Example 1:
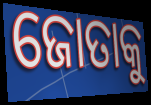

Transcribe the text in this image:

ଜୋତାକୁ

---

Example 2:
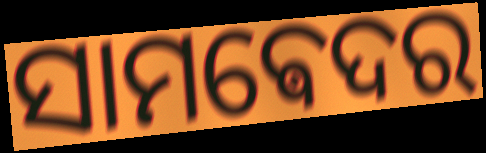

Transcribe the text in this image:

ସାମଵେଦର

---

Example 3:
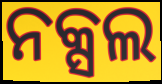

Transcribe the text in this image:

ନକ୍ସଲ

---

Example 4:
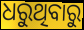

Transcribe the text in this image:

ଧରୁଥିବାରୁ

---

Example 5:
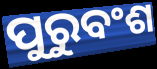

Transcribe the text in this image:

ପୁରୁବଂଶ